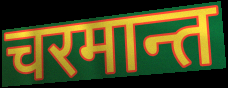
चरमान्त